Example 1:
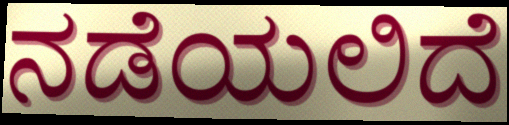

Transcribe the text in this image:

ನಡೆಯಲಿದೆ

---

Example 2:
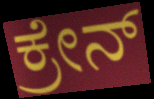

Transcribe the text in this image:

ಕ್ರೇನ್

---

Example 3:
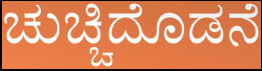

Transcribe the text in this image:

ಚುಚ್ಚಿದೊಡನೆ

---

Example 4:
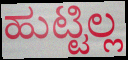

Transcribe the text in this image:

ಹುಟ್ಟಿಲ್ಲ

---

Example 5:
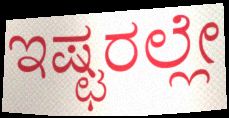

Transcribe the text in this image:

ಇಷ್ಟರಲ್ಲೇ